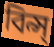
বিন্স্